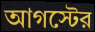
আগস্টের